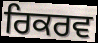
ਰਿਕਰਵ